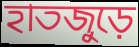
হাতজুড়ে